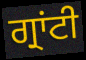
ਗ੍ਰਾਂਟੀ